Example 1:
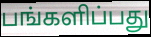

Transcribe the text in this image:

பங்களிப்பது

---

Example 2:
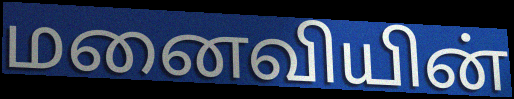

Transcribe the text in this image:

மனைவியின்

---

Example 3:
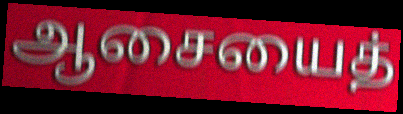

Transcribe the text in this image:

ஆசையைத்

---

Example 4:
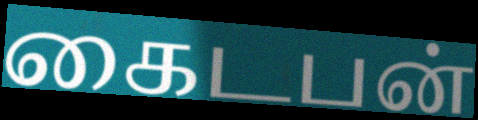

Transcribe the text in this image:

கைடபன்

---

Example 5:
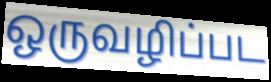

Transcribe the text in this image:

ஒருவழிப்பட